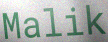
Malik